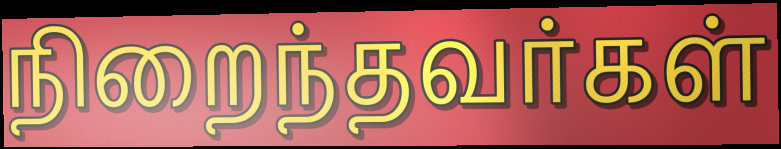
நிறைந்தவர்கள்